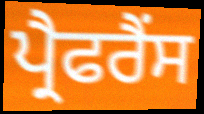
ਪ੍ਰੈਫਰੈਂਸ